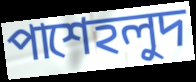
পাশেহলুদ